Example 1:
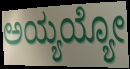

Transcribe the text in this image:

ಅಯ್ಯಯ್ಯೋ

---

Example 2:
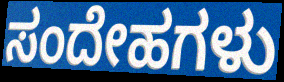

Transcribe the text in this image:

ಸಂದೇಹಗಳು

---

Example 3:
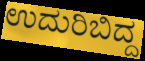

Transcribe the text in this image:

ಉದುರಿಬಿದ್ದ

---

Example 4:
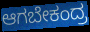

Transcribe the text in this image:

ಆಗಬೇಕಂದ್ರ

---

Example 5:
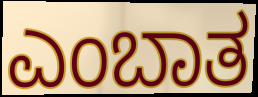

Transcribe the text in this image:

ಎಂಬಾತ